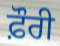
ਫ਼ੌਰੀ